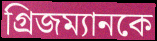
গ্রিজম্যানকে